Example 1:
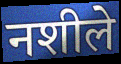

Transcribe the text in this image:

नशीले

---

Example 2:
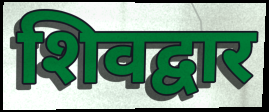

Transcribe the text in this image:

शिवद्वार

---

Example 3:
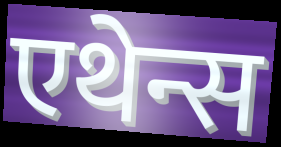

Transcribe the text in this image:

एथेन्स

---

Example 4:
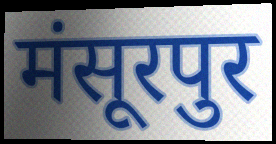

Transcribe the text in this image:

मंसूरपुर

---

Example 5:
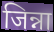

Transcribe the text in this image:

जिन्ना